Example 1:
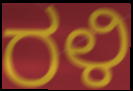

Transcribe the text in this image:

ರಳಿ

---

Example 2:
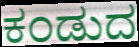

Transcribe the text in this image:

ಕಂಡುದ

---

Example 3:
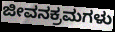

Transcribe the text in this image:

ಜೀವನಕ್ರಮಗಳು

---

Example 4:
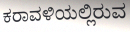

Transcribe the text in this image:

ಕರಾವಳಿಯಲ್ಲಿರುವ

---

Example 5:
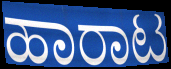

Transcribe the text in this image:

ಹಾರಾಟ